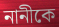
নানীকে